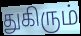
துகிரும்